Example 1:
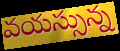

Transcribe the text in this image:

వయస్సున్న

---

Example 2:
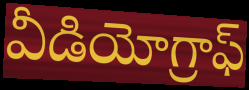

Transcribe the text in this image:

వీడియోగ్రాఫ్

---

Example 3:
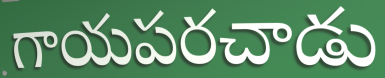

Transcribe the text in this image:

గాయపరచాడు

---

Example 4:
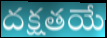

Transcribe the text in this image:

దక్షతయే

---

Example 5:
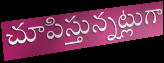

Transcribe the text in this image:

చూపిస్తున్నట్లుగా